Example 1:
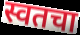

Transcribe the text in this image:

स्वतचा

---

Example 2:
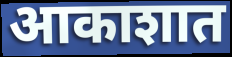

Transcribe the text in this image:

आकाशात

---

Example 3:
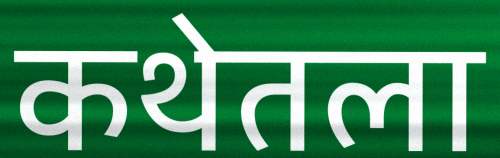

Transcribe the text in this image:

कथेतला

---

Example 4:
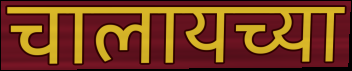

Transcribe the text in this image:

चालायच्या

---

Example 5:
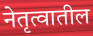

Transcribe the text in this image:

नेतृत्वातील